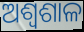
ଅଶ୍ୱଶାଳ